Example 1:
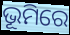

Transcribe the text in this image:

ଭୂମିରେ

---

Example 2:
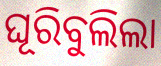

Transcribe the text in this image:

ଘୂରିବୁଲିଲା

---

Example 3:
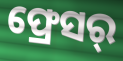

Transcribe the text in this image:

ଫ୍ରେସର୍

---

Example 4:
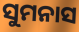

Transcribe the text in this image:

ସୁମନାସ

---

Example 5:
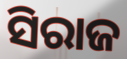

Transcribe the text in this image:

ସିରାଜ